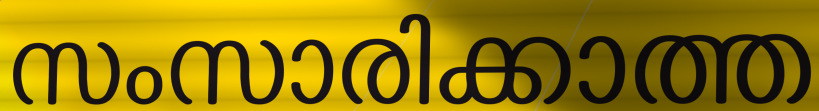
സംസാരിക്കാത്ത